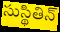
సుస్థితిన్